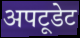
अपटूडेट